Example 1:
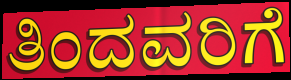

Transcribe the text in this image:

ತಿಂದವರಿಗೆ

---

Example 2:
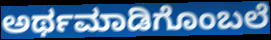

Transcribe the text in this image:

ಅರ್ಥಮಾಡಿಗೊಂಬಲೆ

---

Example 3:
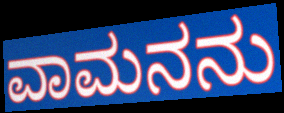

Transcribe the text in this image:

ವಾಮನನು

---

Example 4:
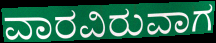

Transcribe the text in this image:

ವಾರವಿರುವಾಗ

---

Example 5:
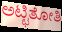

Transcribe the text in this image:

ಅಟ್ಟಿತೋತಿ